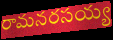
రామనరసయ్య